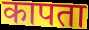
कापता